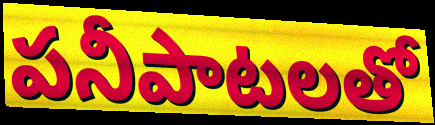
పనీపాటలతో